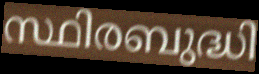
സ്ഥിരബുദ്ധി